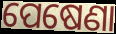
ପେଷେଣା